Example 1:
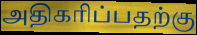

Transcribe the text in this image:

அதிகரிப்பதற்கு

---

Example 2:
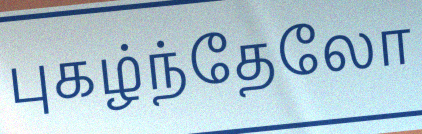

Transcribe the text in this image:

புகழ்ந்தேலோ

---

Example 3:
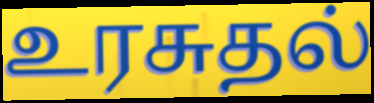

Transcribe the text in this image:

உரசுதல்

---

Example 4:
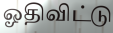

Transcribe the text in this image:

ஓதிவிட்டு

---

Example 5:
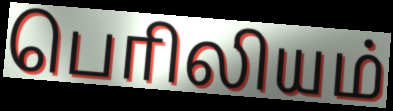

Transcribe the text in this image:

பெரிலியம்